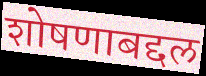
शोषणाबद्दल